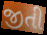
જીતી